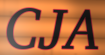
CJA